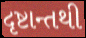
દૃષ્ટાન્તથી